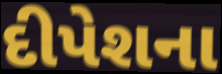
દીપેશના